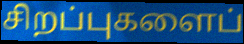
சிறப்புகளைப்